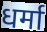
धर्मा